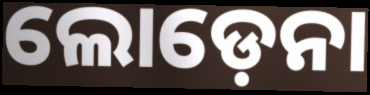
ଲୋଡ଼େନା